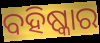
ବହିଷ୍କାର